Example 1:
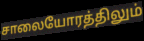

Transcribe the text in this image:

சாலையோரத்திலும்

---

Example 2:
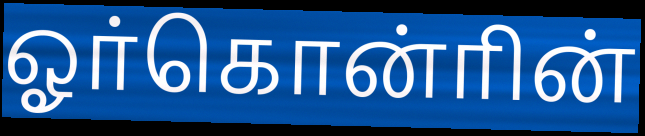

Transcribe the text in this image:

ஓர்கொன்ரின்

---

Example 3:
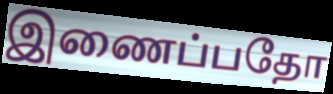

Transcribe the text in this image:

இணைப்பதோ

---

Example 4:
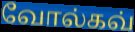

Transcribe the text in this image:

வோல்கவ்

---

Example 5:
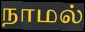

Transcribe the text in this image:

நாமல்